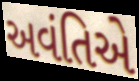
અવંતિએ